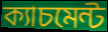
ক্যাচমেন্ট